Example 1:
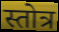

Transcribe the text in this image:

स्तोत्र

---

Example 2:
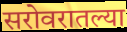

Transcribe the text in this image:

सरोवरातल्या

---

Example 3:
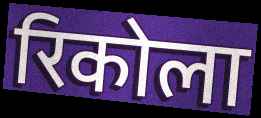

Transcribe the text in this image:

रिकोला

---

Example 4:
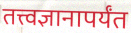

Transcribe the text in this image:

तत्त्वज्ञानापर्यंत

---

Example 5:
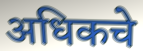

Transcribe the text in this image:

अधिकचे